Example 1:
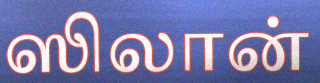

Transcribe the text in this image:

ஸிலான்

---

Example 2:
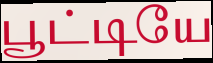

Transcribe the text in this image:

பூட்டியே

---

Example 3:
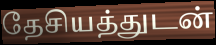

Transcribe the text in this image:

தேசியத்துடன்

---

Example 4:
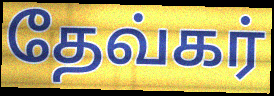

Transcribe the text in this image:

தேவ்கர்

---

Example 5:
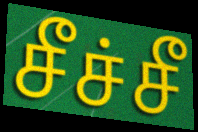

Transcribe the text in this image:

சீச்சீ